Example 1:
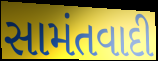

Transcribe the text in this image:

સામંતવાદી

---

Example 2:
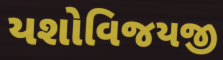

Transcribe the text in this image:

યશોવિજયજી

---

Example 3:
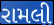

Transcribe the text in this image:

રામલી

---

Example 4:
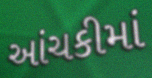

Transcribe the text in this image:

આંચકીમાં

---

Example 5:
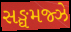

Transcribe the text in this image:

સઙ્ઘમજ્ઝે